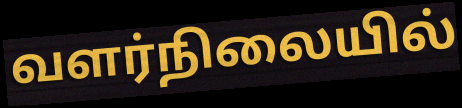
வளர்நிலையில்